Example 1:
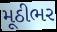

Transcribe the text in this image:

મૂઠીભર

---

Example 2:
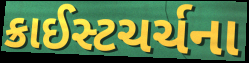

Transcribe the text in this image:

ક્રાઈસ્ટચર્ચના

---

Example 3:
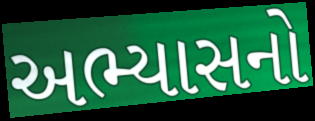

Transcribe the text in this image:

અભ્યાસનો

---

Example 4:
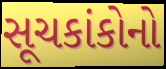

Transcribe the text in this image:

સૂચકાંકોનો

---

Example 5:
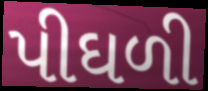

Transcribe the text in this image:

પીઘળી